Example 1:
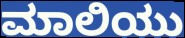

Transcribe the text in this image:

ಮಾಲಿಯು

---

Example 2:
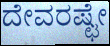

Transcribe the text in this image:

ದೇವರಷ್ಟೇ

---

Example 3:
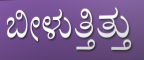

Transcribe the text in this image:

ಬೀಳುತ್ತಿತ್ತು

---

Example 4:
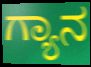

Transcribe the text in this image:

ಗ್ಯಾನ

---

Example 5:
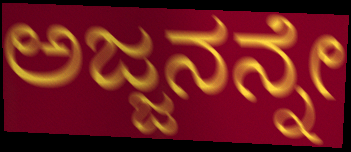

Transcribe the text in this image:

ಅಜ್ಜನನ್ನೇ